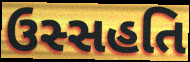
ઉસ્સહતિ